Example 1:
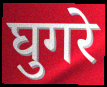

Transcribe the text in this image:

घुगरे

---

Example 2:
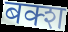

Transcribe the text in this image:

बक्श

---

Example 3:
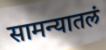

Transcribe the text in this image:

सामन्यातलं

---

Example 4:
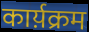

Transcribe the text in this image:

कार्य़क्रम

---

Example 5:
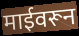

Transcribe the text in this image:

माईवरून